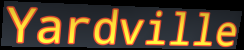
Yardville